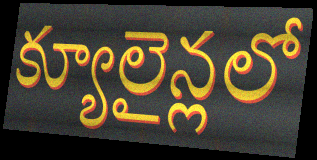
క్యూలైన్లలో